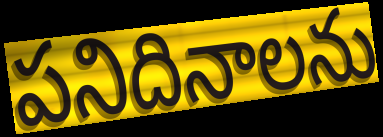
పనిదినాలను